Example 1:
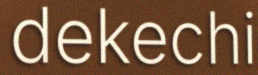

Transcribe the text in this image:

dekechi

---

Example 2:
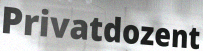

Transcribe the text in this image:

Privatdozent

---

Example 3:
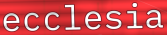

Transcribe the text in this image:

ecclesia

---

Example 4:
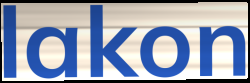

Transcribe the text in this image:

lakon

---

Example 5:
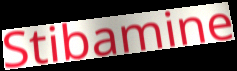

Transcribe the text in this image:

Stibamine